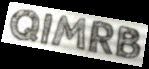
QIMRB